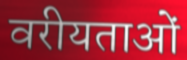
वरीयताओं